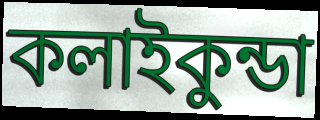
কলাইকুন্ডা